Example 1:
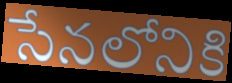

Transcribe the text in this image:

సేనలోనికి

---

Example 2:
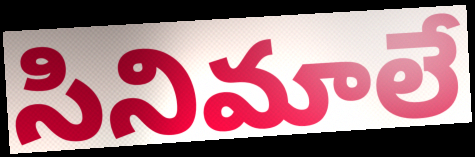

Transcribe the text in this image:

సినిమాలే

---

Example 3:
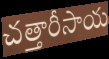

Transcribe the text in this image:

చత్తారీసాయ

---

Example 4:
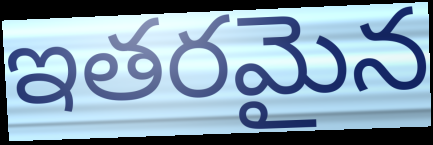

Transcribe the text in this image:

ఇతరమైన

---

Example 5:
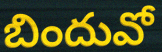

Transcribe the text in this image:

బిందువో